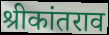
श्रीकांतराव